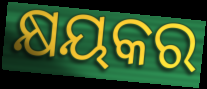
କ୍ଷୟକର